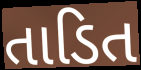
તાડિત